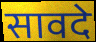
सावदे